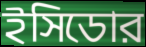
ইসিডোর